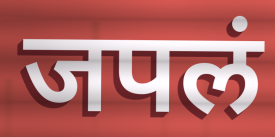
जपलं